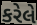
કરેલે